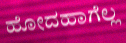
ಹೋದಹಾಗೆಲ್ಲ